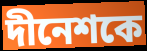
দীনেশকে